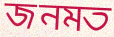
জনমত